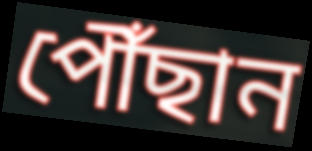
পৌঁছান